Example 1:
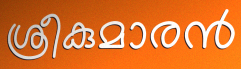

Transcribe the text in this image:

ശ്രീകുമാരൻ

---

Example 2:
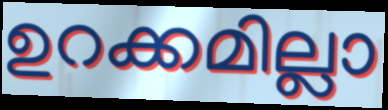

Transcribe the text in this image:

ഉറക്കമില്ലാ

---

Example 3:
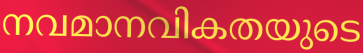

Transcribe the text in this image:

നവമാനവികതയുടെ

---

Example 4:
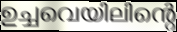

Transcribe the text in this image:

ഉച്ചവെയിലിന്റെ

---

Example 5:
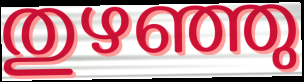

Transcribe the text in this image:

തുഴഞ്ഞു